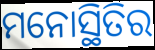
ମନୋସ୍ଥିତିର